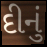
દીનું